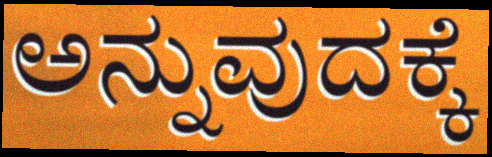
ಅನ್ನುವುದಕ್ಕೆ